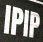
IPIP